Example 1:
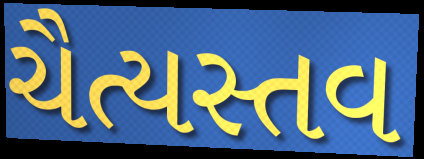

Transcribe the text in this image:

ચૈત્યસ્તવ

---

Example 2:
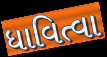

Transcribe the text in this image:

ધાવિત્વા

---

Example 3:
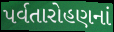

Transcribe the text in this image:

પર્વતારોહણનાં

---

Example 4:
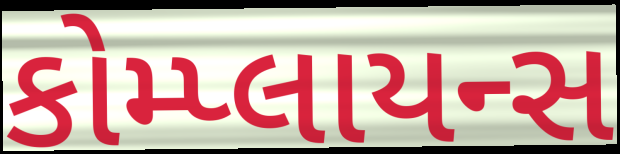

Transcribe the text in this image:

કોમ્પ્લાયન્સ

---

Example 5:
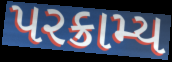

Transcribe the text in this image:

પરક્રામ્ય